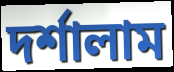
দর্শালাম